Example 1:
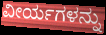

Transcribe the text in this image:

ವೀರ್ಯಗಳನ್ನು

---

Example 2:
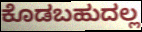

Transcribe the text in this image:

ಕೊಡಬಹುದಲ್ಲ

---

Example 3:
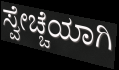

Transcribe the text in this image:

ಸ್ವೇಚ್ಚೆಯಾಗಿ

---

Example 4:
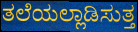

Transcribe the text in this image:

ತಲೆಯಲ್ಲಾಡಿಸುತ್ತ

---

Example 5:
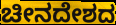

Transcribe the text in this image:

ಚೀನದೇಶದ